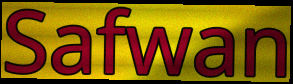
Safwan